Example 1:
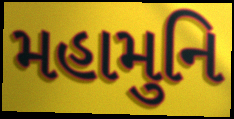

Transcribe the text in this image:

મહામુનિ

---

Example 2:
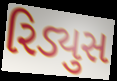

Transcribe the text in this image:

રિડ્યુસ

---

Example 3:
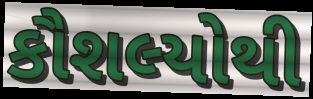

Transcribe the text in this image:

કૌશલ્યોથી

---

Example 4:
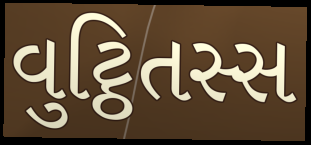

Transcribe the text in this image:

વુટ્ઠિતસ્સ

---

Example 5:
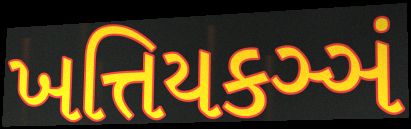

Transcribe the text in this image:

ખત્તિયકઞ્ઞં